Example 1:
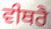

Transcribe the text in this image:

ਵੀਥਰੈ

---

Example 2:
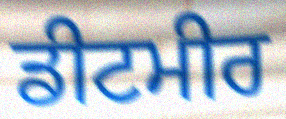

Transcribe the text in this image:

ਡੀਟਮੀਰ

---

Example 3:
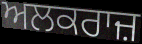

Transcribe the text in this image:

ਅਲਕਰਾਜ਼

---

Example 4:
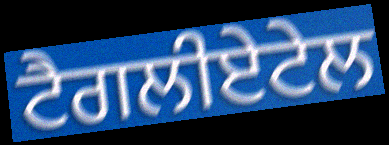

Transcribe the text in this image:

ਟੈਗਲੀਏਟੇਲ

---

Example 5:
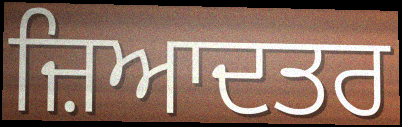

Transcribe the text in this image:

ਜ਼ਿਆਦਤਰ